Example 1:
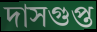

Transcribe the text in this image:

দাসগুপ্ত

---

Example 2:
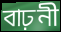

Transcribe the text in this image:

বাঢ়নী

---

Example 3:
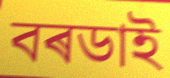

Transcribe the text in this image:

বৰডাই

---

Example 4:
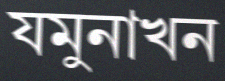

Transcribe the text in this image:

যমুনাখন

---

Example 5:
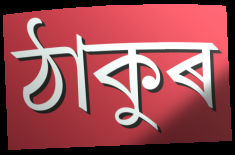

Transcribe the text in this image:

ঠাকুৰ